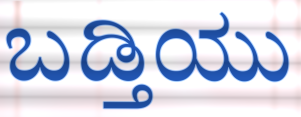
ಬಡ್ತಿಯು